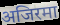
अजिरमा